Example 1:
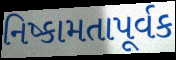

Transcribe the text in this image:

નિષ્કામતાપૂર્વક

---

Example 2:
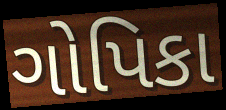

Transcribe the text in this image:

ગોપિકા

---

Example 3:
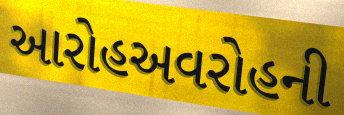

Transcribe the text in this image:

આરોહઅવરોહની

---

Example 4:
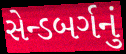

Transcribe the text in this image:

સેન્ડબર્ગનું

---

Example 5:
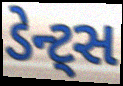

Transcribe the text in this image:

ડેન્ટ્સ